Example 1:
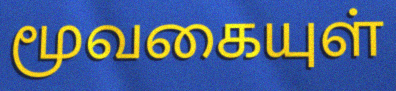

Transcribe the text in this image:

மூவகையுள்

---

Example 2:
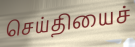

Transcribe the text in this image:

செய்தியைச்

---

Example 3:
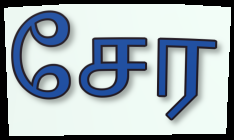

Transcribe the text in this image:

சேர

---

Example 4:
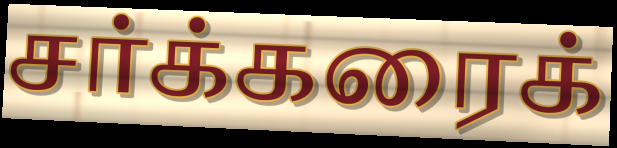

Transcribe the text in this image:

சர்க்கரைக்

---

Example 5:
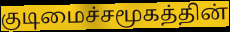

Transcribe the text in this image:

குடிமைச்சமூகத்தின்